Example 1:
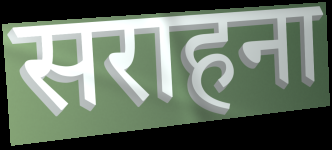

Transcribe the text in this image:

सराहना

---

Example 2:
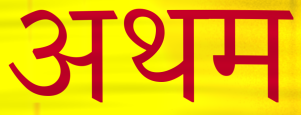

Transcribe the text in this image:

अथम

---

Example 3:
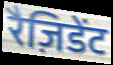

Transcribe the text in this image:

रैज़िडेंट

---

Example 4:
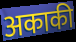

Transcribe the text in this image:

अकाकी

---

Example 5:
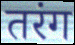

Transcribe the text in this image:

तरंग